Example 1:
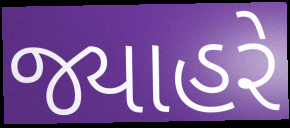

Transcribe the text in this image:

જ્યાહરે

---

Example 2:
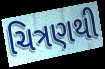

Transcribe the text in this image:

ચિત્રણથી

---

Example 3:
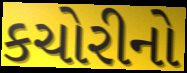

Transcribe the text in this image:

કચોરીનો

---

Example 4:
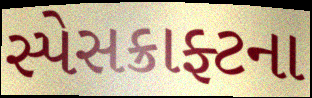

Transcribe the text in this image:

સ્પેસક્રાફ્ટના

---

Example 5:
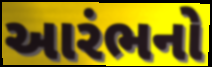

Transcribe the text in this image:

આરંભનો